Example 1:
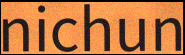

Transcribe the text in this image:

nichun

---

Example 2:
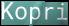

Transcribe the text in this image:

Kopri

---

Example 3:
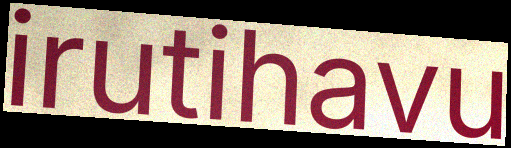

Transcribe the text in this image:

irutihavu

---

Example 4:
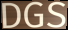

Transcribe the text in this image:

DGS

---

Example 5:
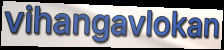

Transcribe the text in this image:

vihangavlokan